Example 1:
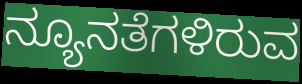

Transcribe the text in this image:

ನ್ಯೂನತೆಗಳಿರುವ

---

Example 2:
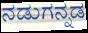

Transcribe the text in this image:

ನಡುಗನ್ನಡ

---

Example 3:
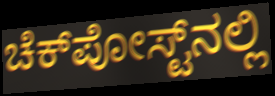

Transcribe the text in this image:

ಚೆಕ್‌ಪೋಸ್ಟ್‌ನಲ್ಲಿ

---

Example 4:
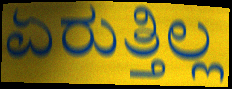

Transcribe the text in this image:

ಏರುತ್ತಿಲ್ಲ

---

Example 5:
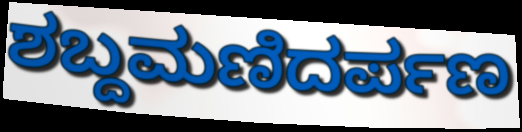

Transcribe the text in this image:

ಶಬ್ದಮಣಿದರ್ಪಣ